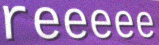
reeeee